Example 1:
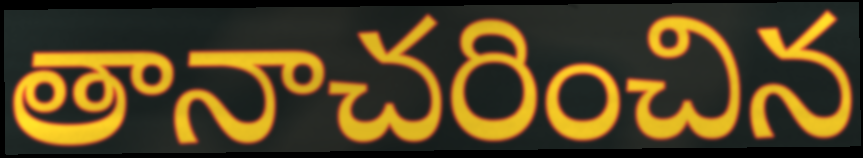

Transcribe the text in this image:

తానాచరించిన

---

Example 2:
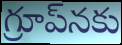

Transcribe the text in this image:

గ్రూప్‌నకు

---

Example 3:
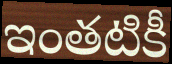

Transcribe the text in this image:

ఇంతటికీ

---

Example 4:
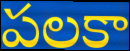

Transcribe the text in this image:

పలకా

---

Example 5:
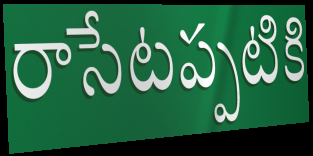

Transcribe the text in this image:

రాసేటప్పటికి